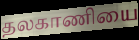
தலகாணியை